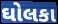
ઘોલકા